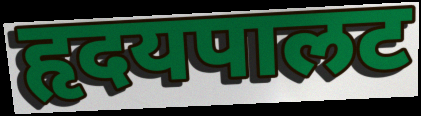
हृदयपालट